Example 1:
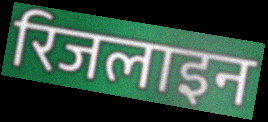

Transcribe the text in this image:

रिजलाइन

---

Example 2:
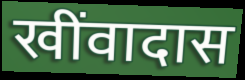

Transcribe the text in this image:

खींवादास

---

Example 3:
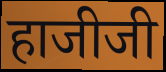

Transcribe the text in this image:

हाजीजी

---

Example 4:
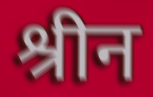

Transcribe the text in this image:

श्रीन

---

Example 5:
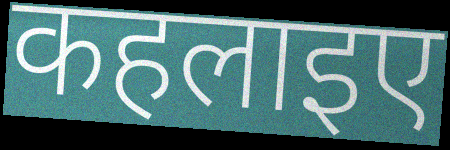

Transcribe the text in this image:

कहलाइए